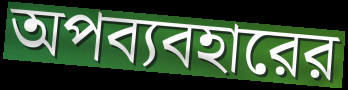
অপব্যবহারের